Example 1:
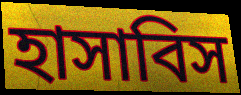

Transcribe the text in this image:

হাসাবিস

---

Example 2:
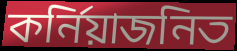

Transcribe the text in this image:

কর্নিয়াজনিত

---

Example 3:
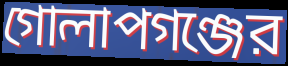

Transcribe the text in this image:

গোলাপগঞ্জের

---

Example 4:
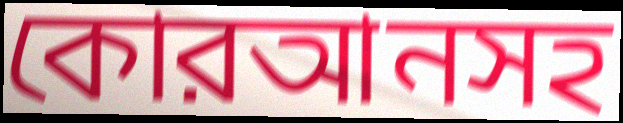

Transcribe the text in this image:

কোরআনসহ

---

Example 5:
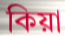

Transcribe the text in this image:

কিয়া